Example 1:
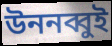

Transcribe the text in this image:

উননব্বুই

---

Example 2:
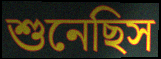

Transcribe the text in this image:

শুনেছিস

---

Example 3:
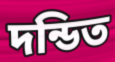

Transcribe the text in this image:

দন্ডিত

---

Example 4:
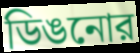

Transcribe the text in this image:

ডিঙনোর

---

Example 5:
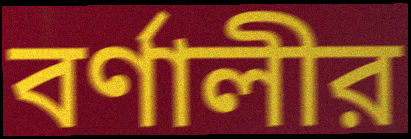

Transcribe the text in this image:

বর্ণালীর